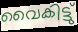
വൈകിട്ടു്